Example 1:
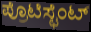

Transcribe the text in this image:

ಪ್ರೊಟೆಸ್ಟೆಂಟ್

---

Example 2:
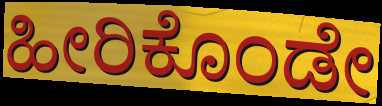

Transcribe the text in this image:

ಹೀರಿಕೊಂಡೇ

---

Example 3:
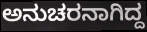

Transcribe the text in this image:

ಅನುಚರನಾಗಿದ್ದ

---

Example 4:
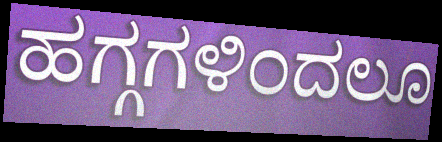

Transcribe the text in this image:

ಹಗ್ಗಗಳಿಂದಲೂ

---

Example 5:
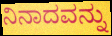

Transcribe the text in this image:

ನಿನಾದವನ್ನು